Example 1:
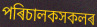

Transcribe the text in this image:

পৰিচালকসকলৰ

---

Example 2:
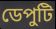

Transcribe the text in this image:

ডেপুটি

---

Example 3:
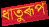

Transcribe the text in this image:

ধাতুৰূপ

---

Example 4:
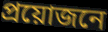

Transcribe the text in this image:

প্ৰয়োজনে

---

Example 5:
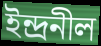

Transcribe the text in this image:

ইন্দ্ৰনীল